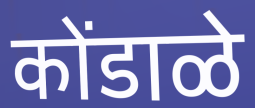
कोंडाळे